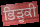
ਭਿੜੂਕੀ